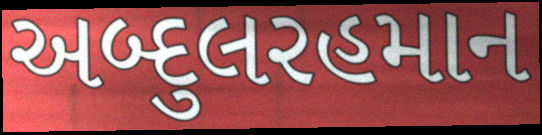
અબ્દુલરહમાન